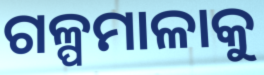
ଗଳ୍ପମାଳାକୁ